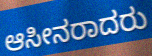
ಆಸೀನರಾದರು